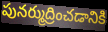
పునర్ముద్రించడానికి